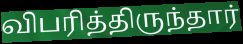
விபரித்திருந்தார்